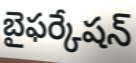
బైఫర్కేషన్